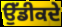
ਉੱਡੀਕਦੇ